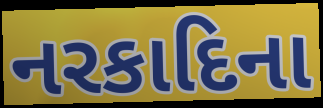
નરકાદિના